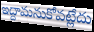
ఇద్దామనుకోవట్లేదు